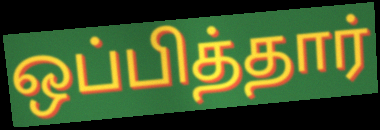
ஒப்பித்தார்